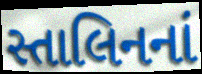
સ્તાલિનનાં